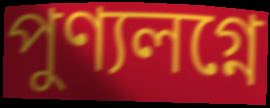
পুণ্যলগ্নে